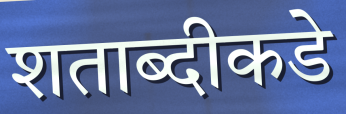
शताब्दीकडे